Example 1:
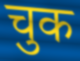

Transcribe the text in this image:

चुक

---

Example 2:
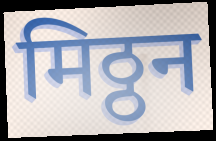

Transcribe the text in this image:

मिठ्ठन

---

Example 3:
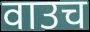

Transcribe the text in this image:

वाउच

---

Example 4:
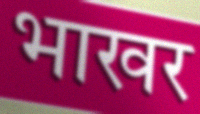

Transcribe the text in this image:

भाखर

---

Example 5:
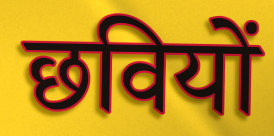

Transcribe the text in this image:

छवियों